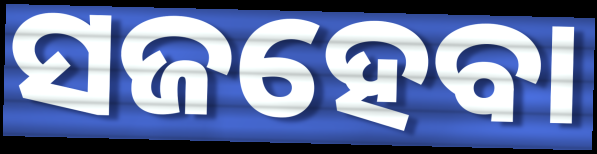
ସଜହେବା